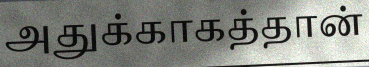
அதுக்காகத்தான்